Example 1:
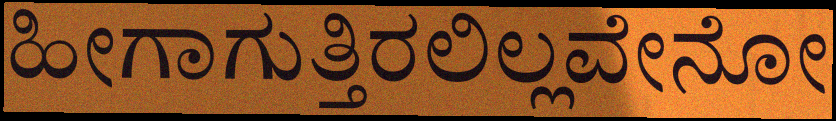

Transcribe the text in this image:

ಹೀಗಾಗುತ್ತಿರಲಿಲ್ಲವೇನೋ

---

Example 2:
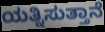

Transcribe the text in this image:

ಯತ್ನಿಸುತ್ತಾನೆ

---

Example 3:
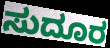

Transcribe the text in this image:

ಸುದೂರ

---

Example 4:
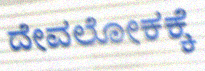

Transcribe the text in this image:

ದೇವಲೋಕಕ್ಕೆ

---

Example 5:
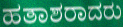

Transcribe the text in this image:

ಹತಾಶರಾದರು